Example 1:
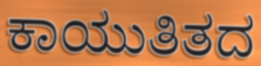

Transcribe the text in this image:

ಕಾಯುತಿತದ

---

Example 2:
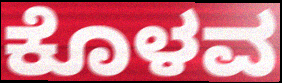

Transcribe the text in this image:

ಕೊಳವ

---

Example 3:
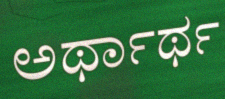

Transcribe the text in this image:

ಅರ್ಥಾರ್ಥ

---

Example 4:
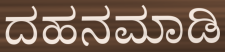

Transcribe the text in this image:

ದಹನಮಾಡಿ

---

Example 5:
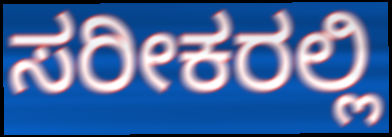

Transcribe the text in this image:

ಸರೀಕರಲ್ಲಿ